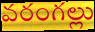
వరంగల్లు